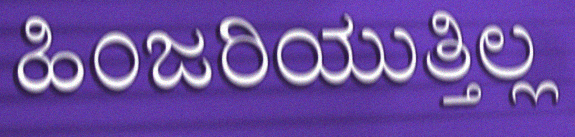
ಹಿಂಜರಿಯುತ್ತಿಲ್ಲ